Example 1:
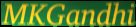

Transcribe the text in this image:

MKGandhi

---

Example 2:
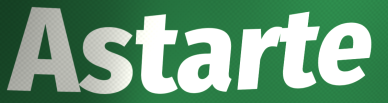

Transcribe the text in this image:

Astarte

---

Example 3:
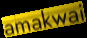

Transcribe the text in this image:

amakwai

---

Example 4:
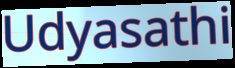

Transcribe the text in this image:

Udyasathi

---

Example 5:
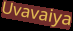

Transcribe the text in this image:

Uvavaiya